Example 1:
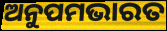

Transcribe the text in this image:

ଅନୁପମଭାରତ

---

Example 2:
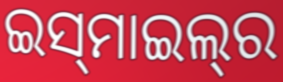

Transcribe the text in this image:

ଇସ୍‌ମାଇଲ୍‌ର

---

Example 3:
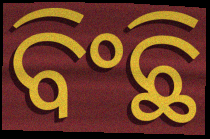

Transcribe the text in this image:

ବିଂଛି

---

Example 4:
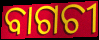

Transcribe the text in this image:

ବାଗଚୀ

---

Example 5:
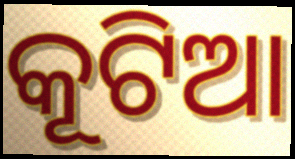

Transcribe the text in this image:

କୂଟିଆ